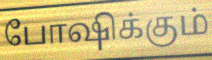
போஷிக்கும்